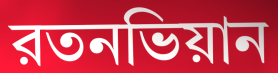
রতনভিয়ান